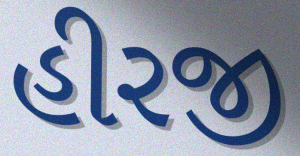
હીરજી